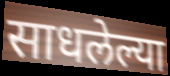
साधलेल्या